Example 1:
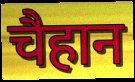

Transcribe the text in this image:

चैहान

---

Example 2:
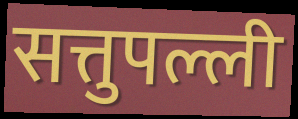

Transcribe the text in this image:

सत्तुपल्ली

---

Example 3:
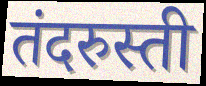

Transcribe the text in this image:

तंदरुस्ती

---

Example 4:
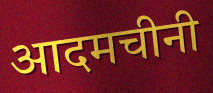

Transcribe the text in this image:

आदमचीनी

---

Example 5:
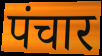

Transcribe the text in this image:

पंचार